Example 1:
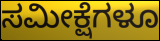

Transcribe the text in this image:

ಸಮೀಕ್ಷೆಗಳೂ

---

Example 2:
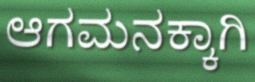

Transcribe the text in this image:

ಆಗಮನಕ್ಕಾಗಿ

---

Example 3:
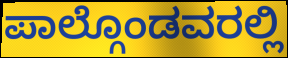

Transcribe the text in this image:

ಪಾಲ್ಗೊಂಡವರಲ್ಲಿ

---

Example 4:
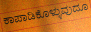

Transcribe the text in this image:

ಕಾಪಾಡಿಕೊಳ್ಳುವುದೂ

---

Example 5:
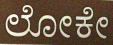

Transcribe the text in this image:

ಲೋಕೇ